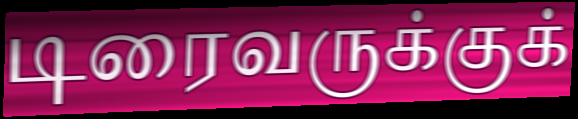
டிரைவருக்குக்